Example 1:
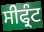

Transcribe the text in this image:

ਸੀਫ੍ਰੰਟ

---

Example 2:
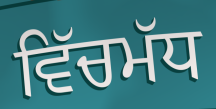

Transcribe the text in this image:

ਵਿੱਚਮੱਧ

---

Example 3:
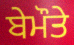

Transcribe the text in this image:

ਬੇਮੌਤੇ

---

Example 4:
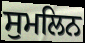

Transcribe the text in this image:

ਸੁਮਲਿਨ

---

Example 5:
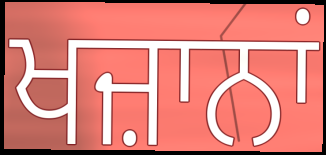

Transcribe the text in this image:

ਖਜ਼ਾਨਾਂ